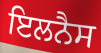
ਇਲਨੈਸ